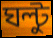
ঘল্টু